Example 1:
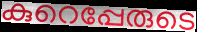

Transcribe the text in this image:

കുറെപ്പേരുടെ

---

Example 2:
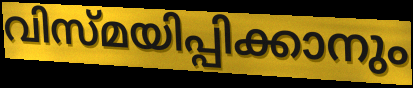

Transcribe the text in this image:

വിസ്മയിപ്പിക്കാനും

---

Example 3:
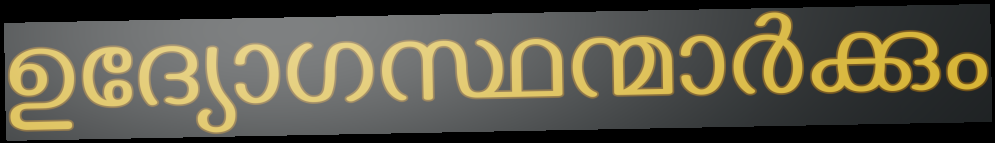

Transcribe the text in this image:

ഉദ്യോഗസ്ഥന്മാർക്കും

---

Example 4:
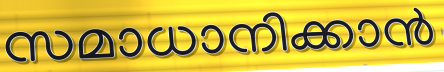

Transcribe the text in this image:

സമാധാനിക്കാൻ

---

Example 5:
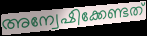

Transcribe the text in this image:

അന്വേഷിക്കേണ്ടത്